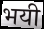
भयी